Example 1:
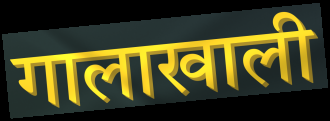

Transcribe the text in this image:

गालाखाली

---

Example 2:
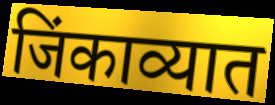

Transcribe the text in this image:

जिंकाव्यात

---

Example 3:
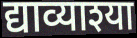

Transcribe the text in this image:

द्याव्याश्या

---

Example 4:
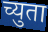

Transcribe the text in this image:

च्युता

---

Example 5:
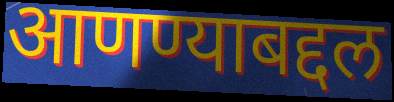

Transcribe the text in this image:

आणण्याबद्दल